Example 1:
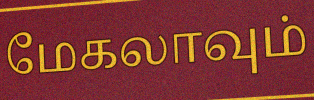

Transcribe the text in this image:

மேகலாவும்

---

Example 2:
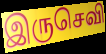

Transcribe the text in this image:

இருசெவி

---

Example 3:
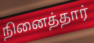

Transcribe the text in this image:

நினைத்தார்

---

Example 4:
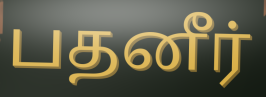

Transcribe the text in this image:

பதனீர்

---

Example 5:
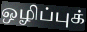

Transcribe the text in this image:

ஒழிப்புக்